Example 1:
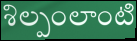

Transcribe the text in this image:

శిల్పంలాంటి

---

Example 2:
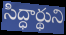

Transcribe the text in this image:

సిద్ధార్థుని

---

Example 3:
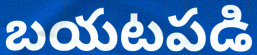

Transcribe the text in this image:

బయటపడి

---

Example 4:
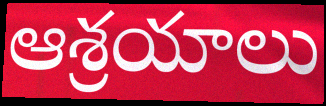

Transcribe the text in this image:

ఆశ్రయాలు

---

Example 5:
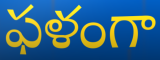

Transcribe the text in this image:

ఫళంగా